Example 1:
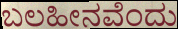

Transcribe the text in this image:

ಬಲಹೀನವೆಂದು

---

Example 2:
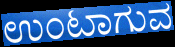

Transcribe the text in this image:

ಉಂಟಾಗುವ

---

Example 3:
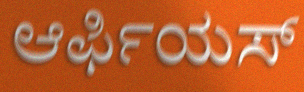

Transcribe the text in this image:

ಆರ್ಫಿಯಸ್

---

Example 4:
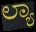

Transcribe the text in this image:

ಲ್ಯಾ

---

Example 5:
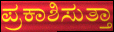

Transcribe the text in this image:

ಪ್ರಕಾಶಿಸುತ್ತಾ